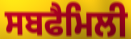
ਸਬਫੈਮਿਲੀ